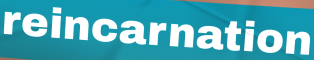
reincarnation